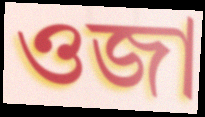
ওজা